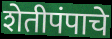
शेतीपंपाचे